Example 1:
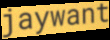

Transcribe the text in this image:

jaywant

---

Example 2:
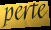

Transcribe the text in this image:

perte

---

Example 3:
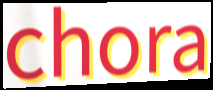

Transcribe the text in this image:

chora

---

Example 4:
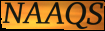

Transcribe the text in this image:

NAAQS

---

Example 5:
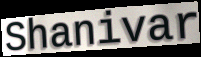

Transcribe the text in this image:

Shanivar